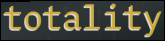
totality